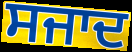
ਸਜਾਦ